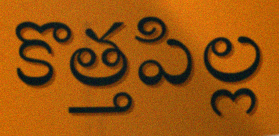
కొత్తపిల్ల